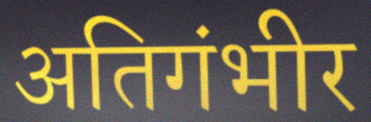
अतिगंभीर